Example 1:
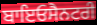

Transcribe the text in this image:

ਬਾਇਓਸੈਨਟਰੀ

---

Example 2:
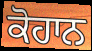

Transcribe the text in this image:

ਕੋਹਾਨ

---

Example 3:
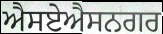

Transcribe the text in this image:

ਐਸਏਐਸਨਗਰ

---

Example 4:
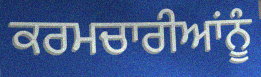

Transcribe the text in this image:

ਕਰਮਚਾਰੀਆਂਨੂੰ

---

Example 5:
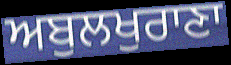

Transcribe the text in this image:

ਅਬੁਲਖੁਰਾਣਾ